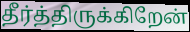
தீர்த்திருக்கிறேன்